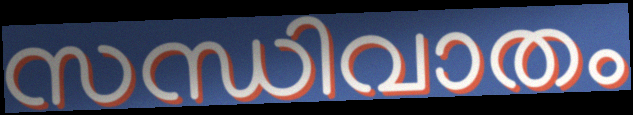
സന്ധിവാതം